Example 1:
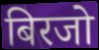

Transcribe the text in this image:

बिरजो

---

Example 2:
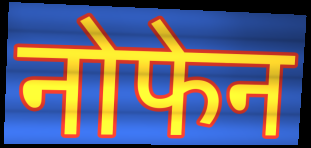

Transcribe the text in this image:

नोफेन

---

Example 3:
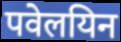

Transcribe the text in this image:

पवेलयिन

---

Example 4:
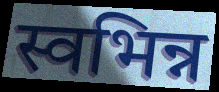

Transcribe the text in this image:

स्वभिन्न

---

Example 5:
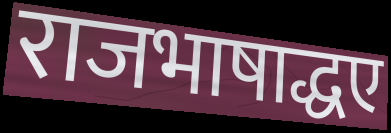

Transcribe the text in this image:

राजभाषाद्धए